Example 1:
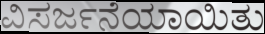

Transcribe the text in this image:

ವಿಸರ್ಜನೆಯಾಯಿತು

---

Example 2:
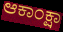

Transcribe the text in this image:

ಆಕಾಂಕ್ಷಾ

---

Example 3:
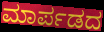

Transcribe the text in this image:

ಮಾರ್ಪಡದ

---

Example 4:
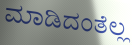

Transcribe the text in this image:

ಮಾಡಿದಂತೆಲ್ಲ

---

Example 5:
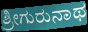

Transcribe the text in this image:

ಶ್ರೀಗುರುನಾಥ